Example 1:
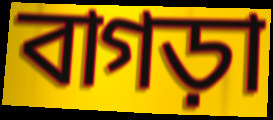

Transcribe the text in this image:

বাগড়া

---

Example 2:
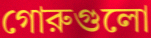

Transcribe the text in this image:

গোরুগুলো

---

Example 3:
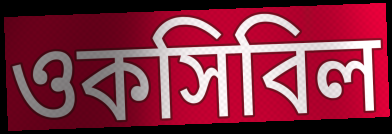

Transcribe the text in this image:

ওকসিবিল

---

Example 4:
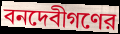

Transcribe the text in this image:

বনদেবীগণের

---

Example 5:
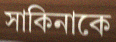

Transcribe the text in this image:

সাকিনাকে